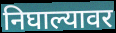
निघाल्यावर